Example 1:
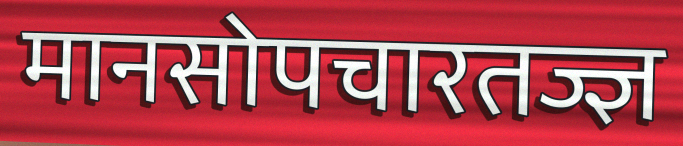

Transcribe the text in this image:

मानसोपचारतज्ज्ञ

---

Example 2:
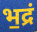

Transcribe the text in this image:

भ॒द्रं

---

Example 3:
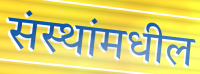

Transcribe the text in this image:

संस्थांमधील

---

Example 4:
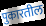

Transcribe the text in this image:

पुकारतील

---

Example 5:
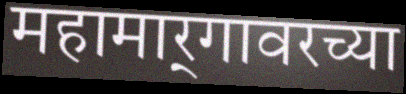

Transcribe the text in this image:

महामार्गावरच्या